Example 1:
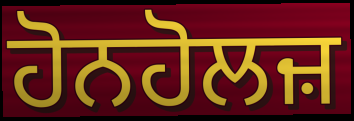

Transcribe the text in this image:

ਹੋਨਹੋਲਜ਼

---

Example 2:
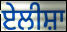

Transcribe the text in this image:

ਏਲੀਸ਼ਾ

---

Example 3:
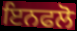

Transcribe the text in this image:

ਇਨਫਲੋ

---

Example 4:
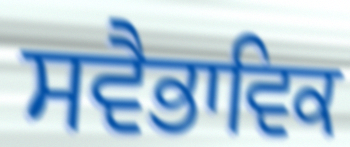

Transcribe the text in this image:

ਸਵੈਭਾਵਿਕ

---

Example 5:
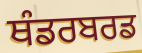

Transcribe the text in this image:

ਥੰਡਰਬਰਡ